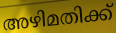
അഴിമതിക്ക്